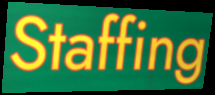
Staffing